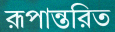
রূপান্তরিত